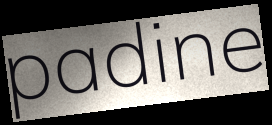
padine